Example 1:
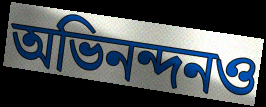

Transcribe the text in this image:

অভিনন্দনও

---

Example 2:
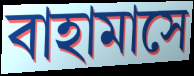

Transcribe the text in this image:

বাহামাসে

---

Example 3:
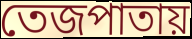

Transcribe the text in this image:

তেজপাতায়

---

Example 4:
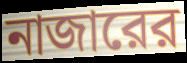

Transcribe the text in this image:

নাজারের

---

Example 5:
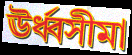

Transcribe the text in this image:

ঊর্ধ্বসীমা